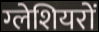
ग्‍लेशियरों